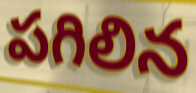
పగిలిన